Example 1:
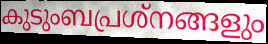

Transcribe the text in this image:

കുടുംബപ്രശ്നങ്ങളും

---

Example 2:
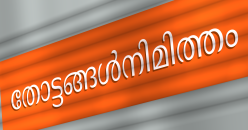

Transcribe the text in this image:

തോട്ടങ്ങൾനിമിത്തം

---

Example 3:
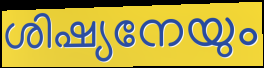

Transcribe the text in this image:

ശിഷ്യനേയും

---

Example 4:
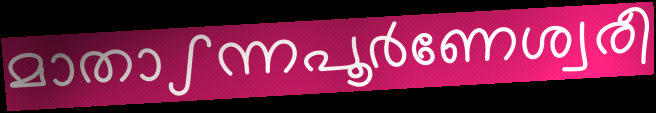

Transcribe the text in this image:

മാതാഽന്നപൂർണേശ്വരീ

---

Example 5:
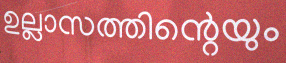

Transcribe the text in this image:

ഉല്ലാസത്തിന്റെയും